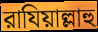
রাযিয়াল্লাহু